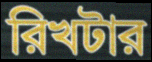
রিখটার